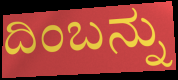
ದಿಂಬನ್ನು